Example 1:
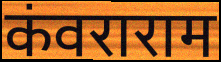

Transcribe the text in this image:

कंवराराम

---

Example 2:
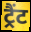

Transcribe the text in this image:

ट्रैंट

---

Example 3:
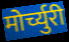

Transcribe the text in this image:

मोर्च्युरी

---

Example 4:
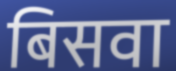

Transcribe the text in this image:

बिसवा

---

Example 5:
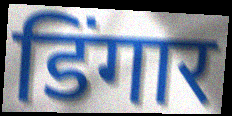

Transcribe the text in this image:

डिंगार